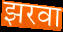
झरवा